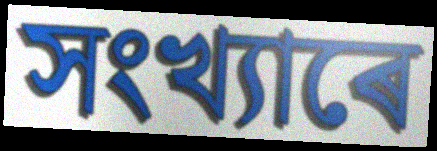
সংখ্যাৰে